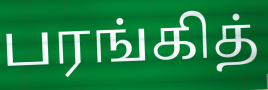
பரங்கித்